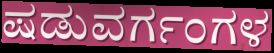
ಷಡುವರ್ಗಂಗಳ